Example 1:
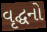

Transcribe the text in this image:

વૃદ્ઘનો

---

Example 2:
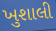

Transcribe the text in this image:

ખુશાલી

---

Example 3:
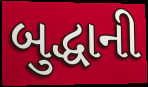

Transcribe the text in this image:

બુદ્ધાની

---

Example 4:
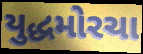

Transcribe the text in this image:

યુદ્ધમોરચા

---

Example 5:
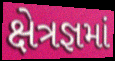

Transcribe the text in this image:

ક્ષેત્રજ્ઞમાં